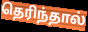
தெரிந்தால்